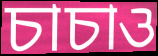
চাচাও